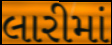
લારીમાં